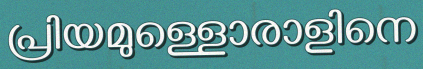
പ്രിയമുള്ളൊരാളിനെ